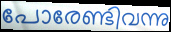
പോരേണ്ടിവന്നു